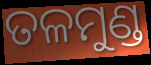
ତଳମୁଣ୍ଡ